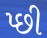
પ્છી